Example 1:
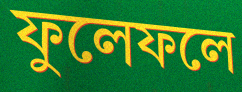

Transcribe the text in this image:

ফুলেফলে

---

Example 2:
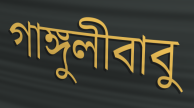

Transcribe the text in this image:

গাঙ্গুলীবাবু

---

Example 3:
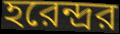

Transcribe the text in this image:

হরেন্দ্রর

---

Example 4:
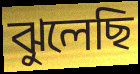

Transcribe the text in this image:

ঝুলেছি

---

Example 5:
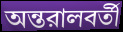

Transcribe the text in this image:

অন্তরালবর্তী